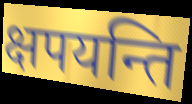
क्षपयन्ति